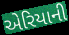
એરિયાની